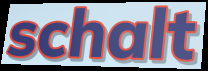
schalt